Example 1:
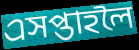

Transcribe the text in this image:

এসপ্তাহলৈ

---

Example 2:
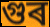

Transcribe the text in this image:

গুৰ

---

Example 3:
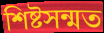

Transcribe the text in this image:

শিষ্টসন্মত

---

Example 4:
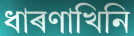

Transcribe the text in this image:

ধাৰণাখিনি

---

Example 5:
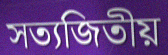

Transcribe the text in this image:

সত্যজিতীয়